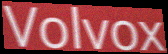
Volvox